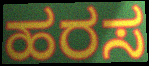
ಹರಸ